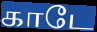
காடே